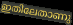
ഇതിലേതാണു